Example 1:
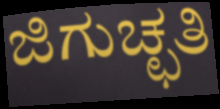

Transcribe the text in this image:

ಜಿಗುಚ್ಛತಿ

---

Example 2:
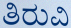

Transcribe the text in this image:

ತಿರುವಿ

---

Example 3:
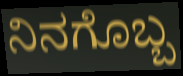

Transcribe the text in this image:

ನಿನಗೊಬ್ಬ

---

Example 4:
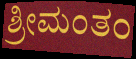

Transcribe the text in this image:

ಶ್ರೀಮಂತಂ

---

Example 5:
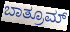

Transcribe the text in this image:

ಬಾತ್ರೂಮ್